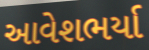
આવેશભર્યા